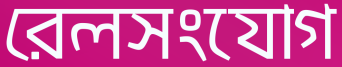
রেলসংযোগ